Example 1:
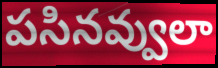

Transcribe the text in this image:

పసినవ్వులా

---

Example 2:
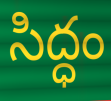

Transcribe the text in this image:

సిద్ధం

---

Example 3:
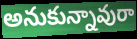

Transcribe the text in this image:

అనుకున్నావురా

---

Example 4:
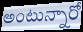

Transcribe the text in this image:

అంటున్నారో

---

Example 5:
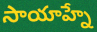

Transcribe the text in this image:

సాయాహ్నే